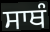
ਸਾਥੰ